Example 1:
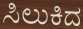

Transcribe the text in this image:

ಸಿಲುಕಿದ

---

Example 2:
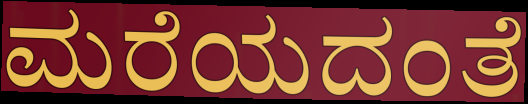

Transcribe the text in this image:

ಮರೆಯದಂತೆ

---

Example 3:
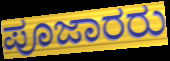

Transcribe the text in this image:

ಪೂಜಾರರು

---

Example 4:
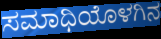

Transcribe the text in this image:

ಸಮಾಧಿಯೊಳಗಿನ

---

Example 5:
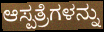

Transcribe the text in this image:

ಆಸ್ಪತ್ರೆಗಳನ್ನು